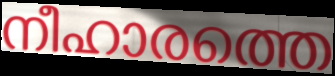
നീഹാരത്തെ